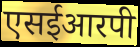
एसईआरपी